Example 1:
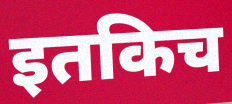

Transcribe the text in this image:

इतकिच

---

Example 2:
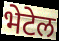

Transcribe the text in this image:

भेटेल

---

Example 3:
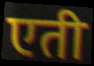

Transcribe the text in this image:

एती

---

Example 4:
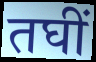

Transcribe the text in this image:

तघीं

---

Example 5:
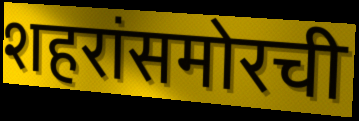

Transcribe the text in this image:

शहरांसमोरची